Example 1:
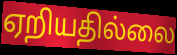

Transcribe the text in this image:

ஏறியதில்லை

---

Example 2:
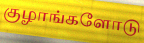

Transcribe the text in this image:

குழாங்களோடு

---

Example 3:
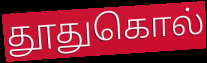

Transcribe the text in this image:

தூதுகொல்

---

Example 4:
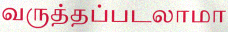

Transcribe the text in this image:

வருத்தப்படலாமா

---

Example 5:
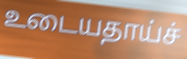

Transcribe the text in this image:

உடையதாய்ச்